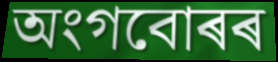
অংগবোৰৰ